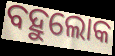
ବହୁଲୋକ